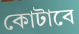
কোটাবে